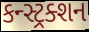
કન્સ્ટ્રક્શન